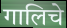
गालिचे